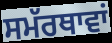
ਸਮੱਰਥਾਵਾਂ